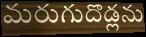
మరుగుదొడ్లను